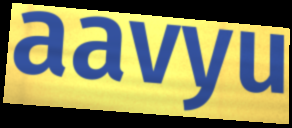
aavyu